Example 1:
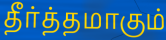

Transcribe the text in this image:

தீர்த்தமாகும்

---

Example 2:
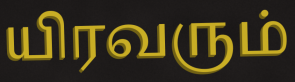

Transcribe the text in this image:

யிரவரும்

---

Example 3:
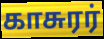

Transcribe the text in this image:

காசுரர்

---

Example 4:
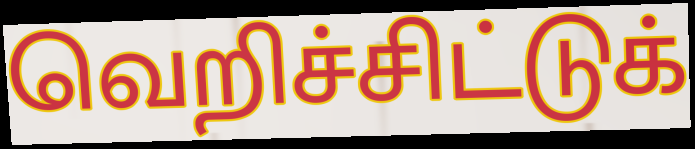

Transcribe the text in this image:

வெறிச்சிட்டுக்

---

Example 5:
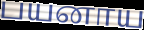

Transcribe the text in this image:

பயனாய